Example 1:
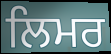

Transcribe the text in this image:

ਲਿਮਰ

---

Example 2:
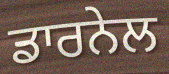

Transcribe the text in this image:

ਡਾਰਨੇਲ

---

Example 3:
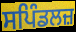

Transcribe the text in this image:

ਸਪਿੰਡਲਜ਼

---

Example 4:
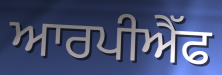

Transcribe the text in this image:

ਆਰਪੀਐੱਫ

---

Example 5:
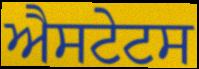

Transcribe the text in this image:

ਐਸਟੇਟਸ